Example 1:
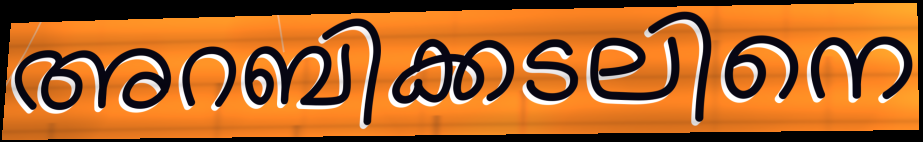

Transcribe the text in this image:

അറബിക്കടലിനെ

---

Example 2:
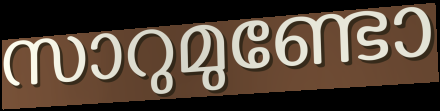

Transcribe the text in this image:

സാറുമുണ്ടോ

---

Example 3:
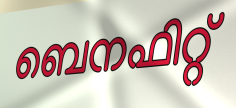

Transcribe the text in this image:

ബെനഫിറ്റ്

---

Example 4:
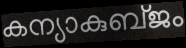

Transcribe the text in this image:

കന്യാകുബ്ജം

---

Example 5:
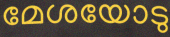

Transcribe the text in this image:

മേശയോടു